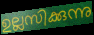
ഉല്ലസിക്കുന്നു